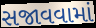
સજાવવામાં